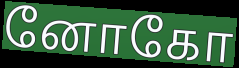
னோகோ